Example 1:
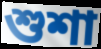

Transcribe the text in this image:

শুশা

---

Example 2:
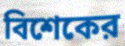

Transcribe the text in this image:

বিশেকের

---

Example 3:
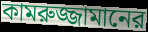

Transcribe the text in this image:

কামরুজ্জামানের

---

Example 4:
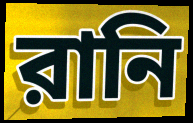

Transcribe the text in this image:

রানি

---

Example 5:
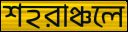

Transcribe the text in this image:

শহরাঞ্চলে